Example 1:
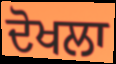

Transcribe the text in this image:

ਦੋਖਲਾ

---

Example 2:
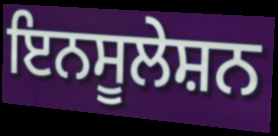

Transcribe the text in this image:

ਇਨਸੂਲੇਸ਼ਨ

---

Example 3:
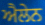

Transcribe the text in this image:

ਐਲੇਨ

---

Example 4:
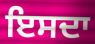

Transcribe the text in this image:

ਇਸਦਾ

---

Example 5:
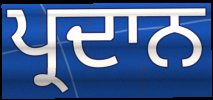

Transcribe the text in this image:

ਪ੍ਰਦਾਨ